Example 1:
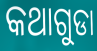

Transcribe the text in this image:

କଥାଗୁଡା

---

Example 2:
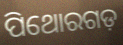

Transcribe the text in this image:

ପିଥୋରଗଡ଼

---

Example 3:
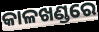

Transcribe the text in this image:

କାଳଖଣ୍ଡରେ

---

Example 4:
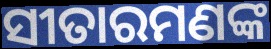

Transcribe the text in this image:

ସୀତାରମଣଙ୍କ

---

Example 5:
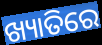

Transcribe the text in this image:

ଖ୍ୟାତିରେ